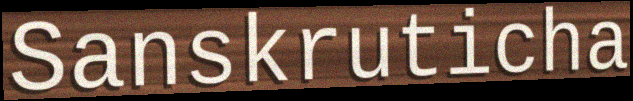
Sanskruticha